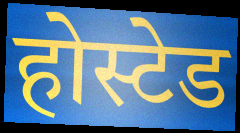
होस्टेड